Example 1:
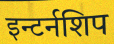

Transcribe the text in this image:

इन्टर्नशिप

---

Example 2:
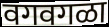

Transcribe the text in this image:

वगवगळा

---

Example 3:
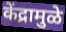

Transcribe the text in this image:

केंद्रामुळे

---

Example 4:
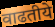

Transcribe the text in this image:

वाढतीये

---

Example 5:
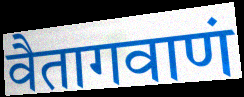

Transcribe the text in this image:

वैतागवाणं